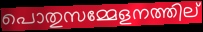
പൊതുസമ്മേളനത്തില്